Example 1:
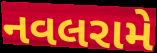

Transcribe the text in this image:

નવલરામે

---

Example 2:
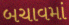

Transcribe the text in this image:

બચાવમાં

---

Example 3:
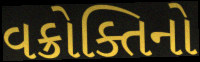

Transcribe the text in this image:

વક્રોક્તિનો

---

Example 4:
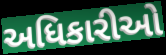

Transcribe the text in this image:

અધિકારીઓ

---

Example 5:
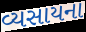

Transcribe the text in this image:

વ્યસાયના